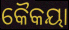
କୈକୟା